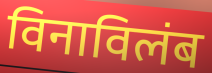
विनाविलंब